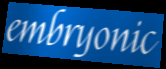
embryonic